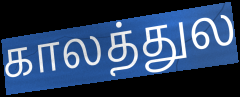
காலத்துல